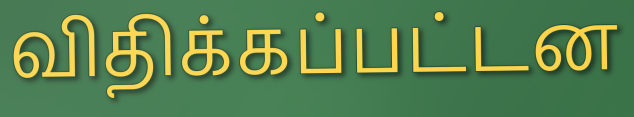
விதிக்கப்பட்டன